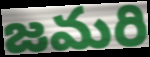
జమరి